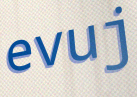
evuj